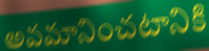
అవమానించటానికి